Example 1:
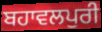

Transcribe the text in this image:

ਬਹਾਵਲਪੁਰੀ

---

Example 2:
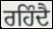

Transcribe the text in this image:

ਰਹਿੰਦੈ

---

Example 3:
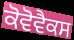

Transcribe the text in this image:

ਕੋਵੋਵੈਕਸ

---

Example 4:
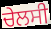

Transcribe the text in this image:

ਚੇਲਸੀ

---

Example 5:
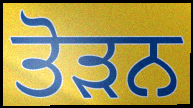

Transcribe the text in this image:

ਤੋੜਨ